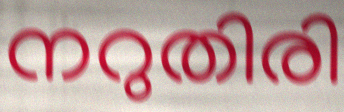
നറുതിരി